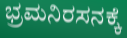
ಭ್ರಮನಿರಸನಕ್ಕೆ